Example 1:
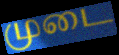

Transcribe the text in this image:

முடை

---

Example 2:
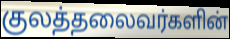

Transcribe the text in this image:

குலத்தலைவர்களின்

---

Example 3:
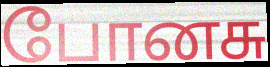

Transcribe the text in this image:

போனசு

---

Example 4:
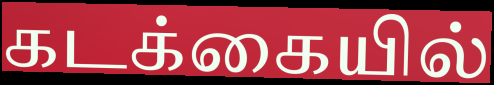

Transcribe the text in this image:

கடக்கையில்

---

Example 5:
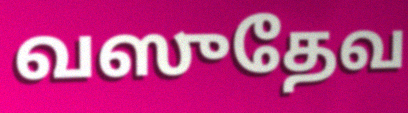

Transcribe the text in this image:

வஸுதேவ